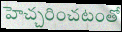
హెచ్చరించటంతో